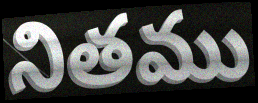
నితము